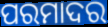
ପରମାଦର